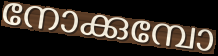
നോക്കുമ്പോ